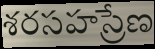
శరసహస్రేణ